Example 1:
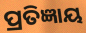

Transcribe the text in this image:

ପ୍ରତିଜ୍ଞାୟ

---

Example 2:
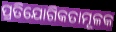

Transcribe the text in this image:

ପ୍ରତିଯୋଗିକତାମୂଳକ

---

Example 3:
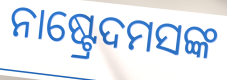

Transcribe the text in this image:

ନାଷ୍ଟ୍ରେଦମସଙ୍କ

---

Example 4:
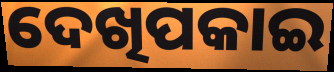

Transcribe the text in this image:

ଦେଖିପକାଇ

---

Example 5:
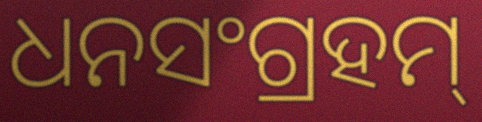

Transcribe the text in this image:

ଧନସଂଗ୍ରହମ୍